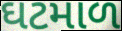
ઘટમાળ